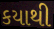
કયાથી